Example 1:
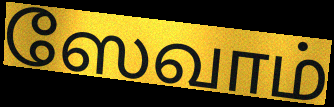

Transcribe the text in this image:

ஸேவாம்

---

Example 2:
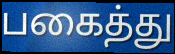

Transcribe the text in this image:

பகைத்து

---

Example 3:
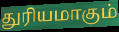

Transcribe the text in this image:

துரியமாகும்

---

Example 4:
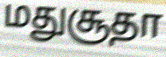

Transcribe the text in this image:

மதுசூதா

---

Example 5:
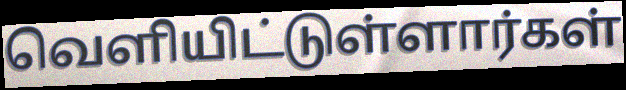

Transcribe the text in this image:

வெளியிட்டுள்ளார்கள்